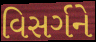
વિસર્ગને